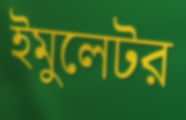
ইমুলেটর